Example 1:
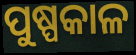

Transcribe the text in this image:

ପୁଷ୍ପକାଳ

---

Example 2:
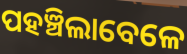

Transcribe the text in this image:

ପହଞ୍ଚିଲାବେଳେ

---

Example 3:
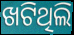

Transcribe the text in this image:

ଖଟିଥିଲି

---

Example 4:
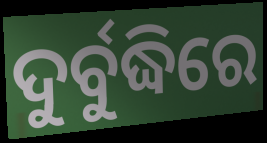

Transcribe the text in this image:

ଦୁର୍ବୁଦ୍ଧିରେ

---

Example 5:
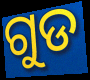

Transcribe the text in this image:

ଗୁଡ